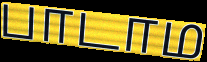
பாடாம